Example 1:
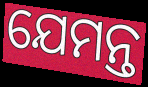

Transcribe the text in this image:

ଯେମନ୍ତ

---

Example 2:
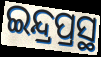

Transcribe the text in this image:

ଇନ୍ଦ୍ରପ୍ରସ୍ଥ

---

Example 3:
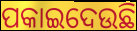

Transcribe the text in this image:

ପକାଇଦେଉଛି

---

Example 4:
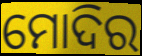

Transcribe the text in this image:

ମୋଦିର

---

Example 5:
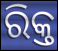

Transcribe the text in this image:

ରିକ୍ତ